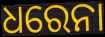
ଧରେନା